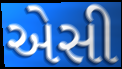
એસી